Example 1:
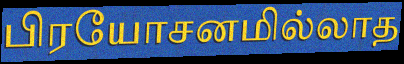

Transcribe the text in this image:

பிரயோசனமில்லாத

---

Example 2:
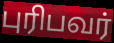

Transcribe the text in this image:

புரிபவர்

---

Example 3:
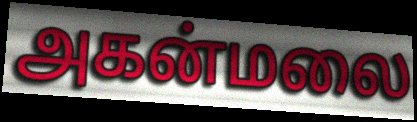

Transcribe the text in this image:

அகன்மலை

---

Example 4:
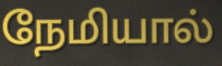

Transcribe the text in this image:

நேமியால்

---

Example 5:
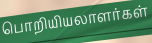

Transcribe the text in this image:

பொறியியலாளர்கள்